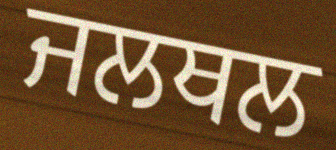
ਜਲਥਲ